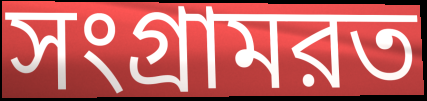
সংগ্রামরত